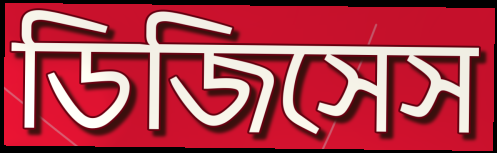
ডিজিসেস